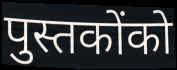
पुस्तकोंको